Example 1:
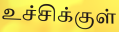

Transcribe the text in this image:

உச்சிக்குள்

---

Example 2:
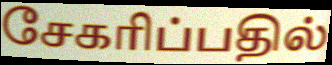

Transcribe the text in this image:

சேகரிப்பதில்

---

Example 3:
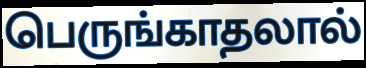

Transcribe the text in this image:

பெருங்காதலால்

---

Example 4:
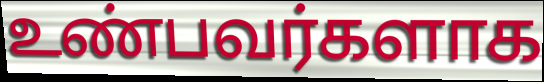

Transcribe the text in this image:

உண்பவர்களாக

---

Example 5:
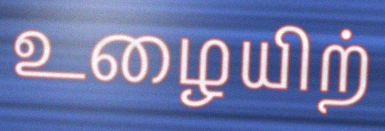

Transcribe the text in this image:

உழையிற்